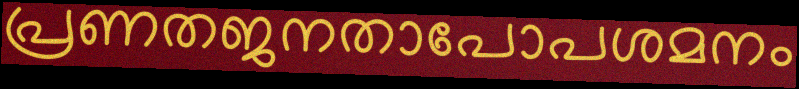
പ്രണതജനതാപോപശമനം